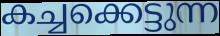
കച്ചക്കെട്ടുന്ന